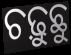
ଚଢ଼ୁଛୁ